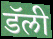
डॅली